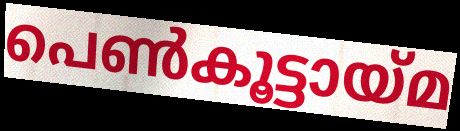
പെൺകൂട്ടായ്മ